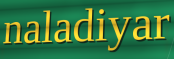
naladiyar